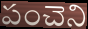
పంచెని